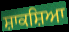
ਸ਼ਾਕਸ਼ਿਆ